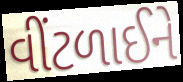
વીંટળાઈને